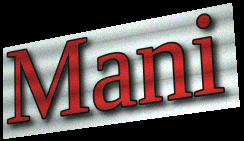
Mani